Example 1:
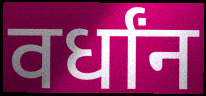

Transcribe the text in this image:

वर्धांन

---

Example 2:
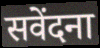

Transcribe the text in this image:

सवेंदना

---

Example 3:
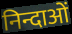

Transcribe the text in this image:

निन्दाओं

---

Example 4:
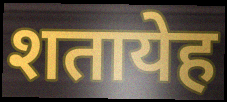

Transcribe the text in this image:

शतायेह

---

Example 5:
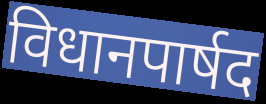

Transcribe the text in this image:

विधानपार्षद